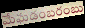
మేఘడంబరంబు